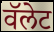
वॅलेट